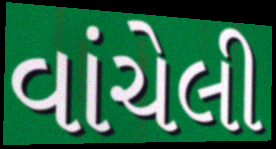
વાંચેલી